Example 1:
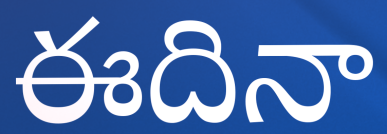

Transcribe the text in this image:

ఈదినా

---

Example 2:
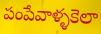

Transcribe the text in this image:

పంపేవాళ్ళకెలా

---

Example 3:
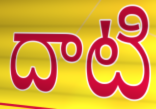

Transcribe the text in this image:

దాటి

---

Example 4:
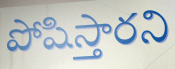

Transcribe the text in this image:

పోషిస్తారని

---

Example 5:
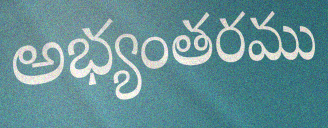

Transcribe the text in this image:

అభ్యంతరము